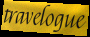
travelogue